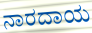
ನಾರದಾಯ